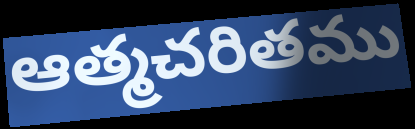
ఆత్మచరితము